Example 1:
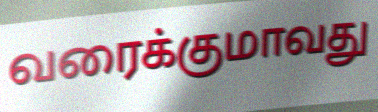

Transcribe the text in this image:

வரைக்குமாவது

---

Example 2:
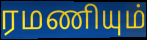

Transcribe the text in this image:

ரமணியும்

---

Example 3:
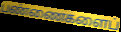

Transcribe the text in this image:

பண்ணைகளைப்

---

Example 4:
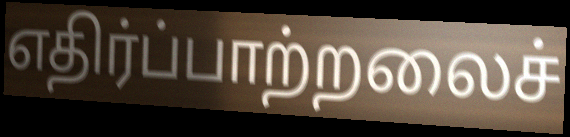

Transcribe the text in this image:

எதிர்ப்பாற்றலைச்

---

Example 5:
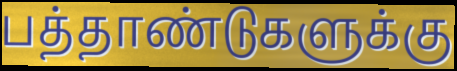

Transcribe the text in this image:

பத்தாண்டுகளுக்கு